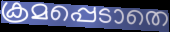
ക്രമപ്പെടാതെ